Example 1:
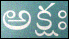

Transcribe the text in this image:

అక్షః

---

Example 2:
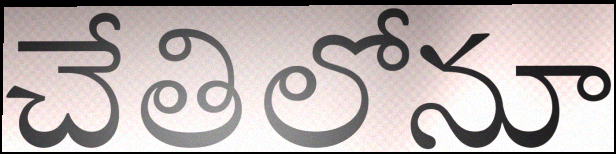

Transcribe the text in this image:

చేతిలోనూ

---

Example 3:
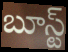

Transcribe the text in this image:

బూస్ట్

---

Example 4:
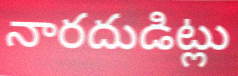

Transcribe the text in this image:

నారదుడిట్లు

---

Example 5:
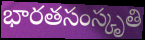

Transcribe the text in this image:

భారతసంస్కృతి